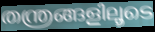
തന്ത്രങ്ങളിലൂടെ